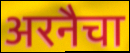
अरनैचा